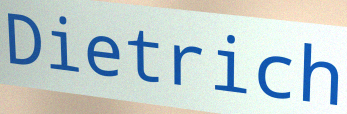
Dietrich